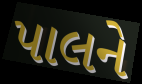
પાલને